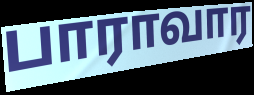
பாராவார